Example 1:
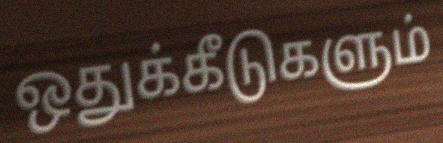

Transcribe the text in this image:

ஒதுக்கீடுகளும்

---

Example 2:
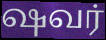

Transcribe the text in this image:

ஷவர்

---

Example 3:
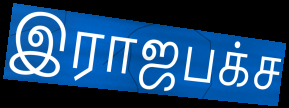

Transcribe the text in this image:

இராஜபக்ச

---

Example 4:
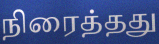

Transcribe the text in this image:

நிரைத்தது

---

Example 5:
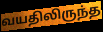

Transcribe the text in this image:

வயதிலிருந்த